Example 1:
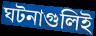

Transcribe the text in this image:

ঘটনাগুলিই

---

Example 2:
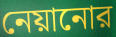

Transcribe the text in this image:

নেয়ানোর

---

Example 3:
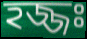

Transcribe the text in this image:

হজ্জঃ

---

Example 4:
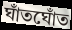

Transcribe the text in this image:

ঘাঁতঘোঁত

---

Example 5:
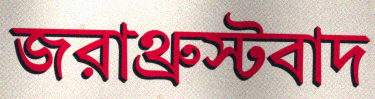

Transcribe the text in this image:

জরাথ্রুস্টবাদ